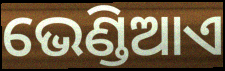
ଭେଣ୍ଡିଆଏ